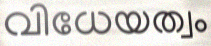
വിധേയത്വം